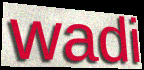
wadi